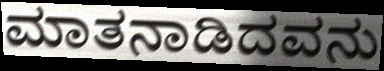
ಮಾತನಾಡಿದವನು